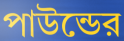
পাউন্ডের